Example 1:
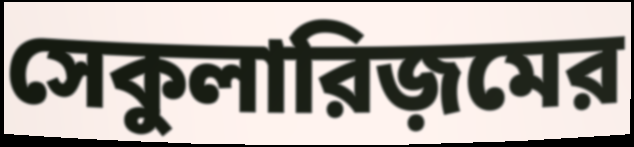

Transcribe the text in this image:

সেকুলারিজ়মের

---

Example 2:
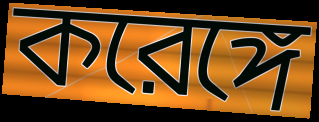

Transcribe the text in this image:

করেঙ্গে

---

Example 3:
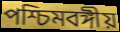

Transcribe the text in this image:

পশ্চিমবঙ্গীয়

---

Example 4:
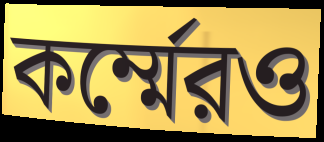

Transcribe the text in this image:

কর্ম্মেরও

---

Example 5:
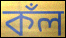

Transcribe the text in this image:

কঁল